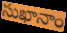
సుఖానాం